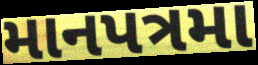
માનપત્રમા